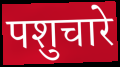
पशुचारे